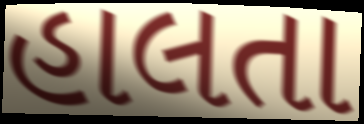
હાલતા